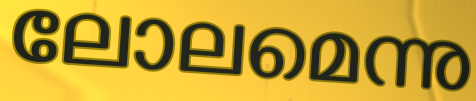
ലോലമെന്നു